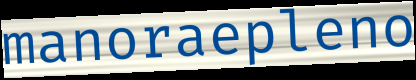
manoraepleno